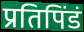
प्रतिपिंडं